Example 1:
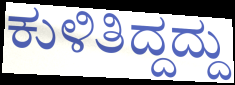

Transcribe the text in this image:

ಕುಳಿತಿದ್ದದ್ದು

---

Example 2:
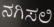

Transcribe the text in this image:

ನಗಿಸಲಿ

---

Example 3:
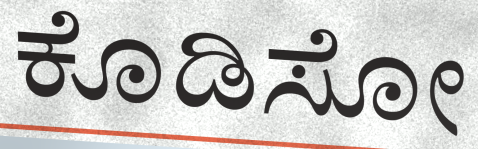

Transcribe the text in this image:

ಕೊಡಿಸೋ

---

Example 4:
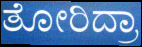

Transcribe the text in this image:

ತೋರಿದ್ರಾ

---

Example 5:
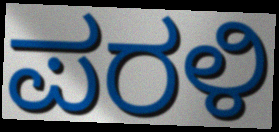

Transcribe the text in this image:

ಪರಳಿ